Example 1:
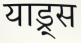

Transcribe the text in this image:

याड्र्स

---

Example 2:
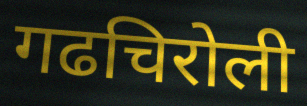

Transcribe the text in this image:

गढचिरोली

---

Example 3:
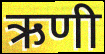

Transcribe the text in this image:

ऋणी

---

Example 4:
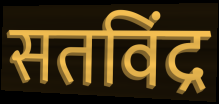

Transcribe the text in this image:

सतविंद्र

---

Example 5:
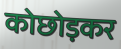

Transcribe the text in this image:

कोछोड़कर